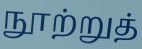
நூற்றுத்